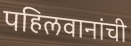
पहिलवानांची